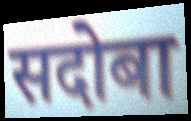
सदोबा